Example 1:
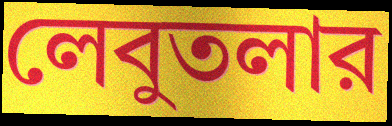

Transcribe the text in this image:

লেবুতলার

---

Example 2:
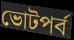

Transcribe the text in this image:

ভোটপর্ব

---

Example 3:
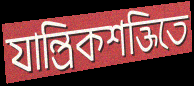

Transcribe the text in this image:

যান্ত্রিকশক্তিতে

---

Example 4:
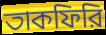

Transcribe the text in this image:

তাকফিরি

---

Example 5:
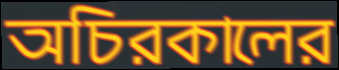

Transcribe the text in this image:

অচিরকালের